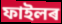
ফাইলৰ